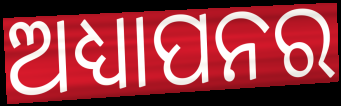
ଅଧ୍ୟାପନର